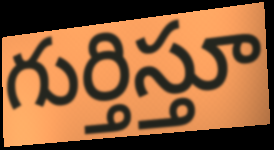
గుర్తిస్తూ